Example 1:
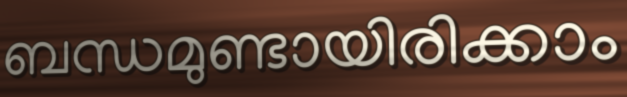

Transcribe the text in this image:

ബന്ധമുണ്ടായിരിക്കാം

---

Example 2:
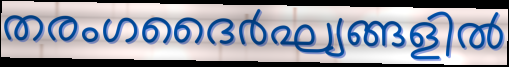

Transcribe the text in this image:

തരംഗദൈർഘ്യങ്ങളിൽ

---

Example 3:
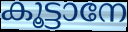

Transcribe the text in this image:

കൂട്ടാനേ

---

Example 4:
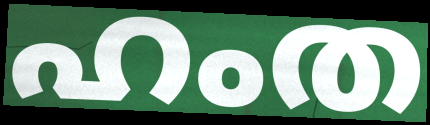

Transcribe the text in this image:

ഹംത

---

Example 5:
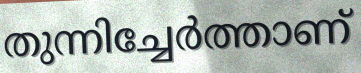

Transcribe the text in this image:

തുന്നിച്ചേർത്താണ്